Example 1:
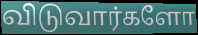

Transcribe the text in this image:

விடுவார்களோ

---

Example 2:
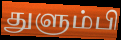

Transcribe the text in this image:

துளும்பி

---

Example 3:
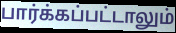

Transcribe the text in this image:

பார்க்கப்பட்டாலும்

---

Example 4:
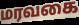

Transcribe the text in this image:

மரவகை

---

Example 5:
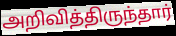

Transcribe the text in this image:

அறிவித்திருந்தார்